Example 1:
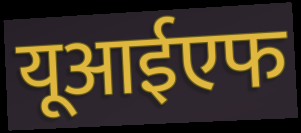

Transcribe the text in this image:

यूआईएफ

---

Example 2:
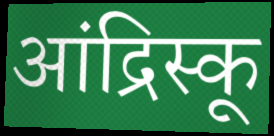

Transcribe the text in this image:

आंद्रिस्कू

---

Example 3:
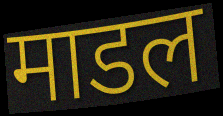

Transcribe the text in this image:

माडल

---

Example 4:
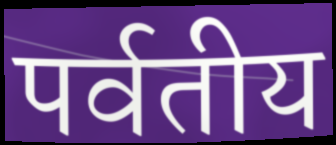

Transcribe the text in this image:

पर्वतीय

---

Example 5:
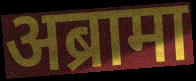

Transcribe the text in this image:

अब्रामा